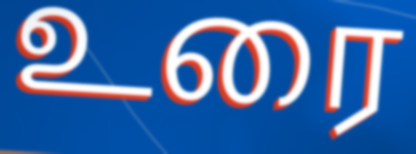
உரை